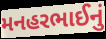
મનહરભાઈનું